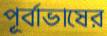
পূর্বাভাষের